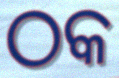
ଠକ